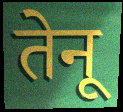
तेनू